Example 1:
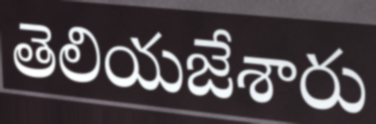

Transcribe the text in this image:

తెలియజేశారు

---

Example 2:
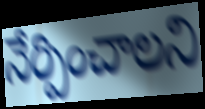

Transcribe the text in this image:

నేర్పించాలని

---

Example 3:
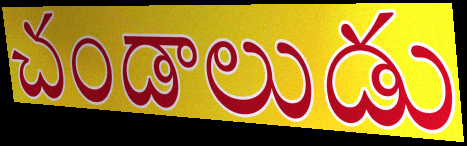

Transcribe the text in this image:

చండాలుడు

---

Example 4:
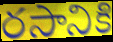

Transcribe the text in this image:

రసానికి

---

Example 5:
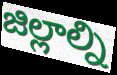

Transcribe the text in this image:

జిల్లాల్ని